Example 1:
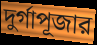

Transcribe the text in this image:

দুর্গাপূজার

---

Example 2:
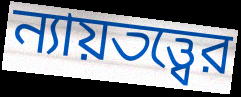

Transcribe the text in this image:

ন্যায়তত্ত্বের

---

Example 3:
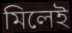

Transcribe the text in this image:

মিলেই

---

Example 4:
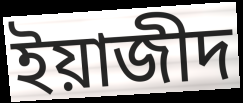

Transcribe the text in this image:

ইয়াজীদ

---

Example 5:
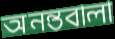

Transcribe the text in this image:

অনন্তবালা